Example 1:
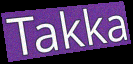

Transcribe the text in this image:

Takka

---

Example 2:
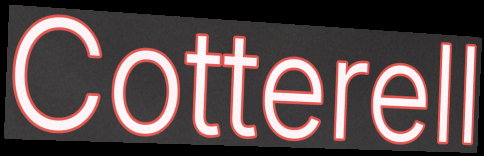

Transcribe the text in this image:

Cotterell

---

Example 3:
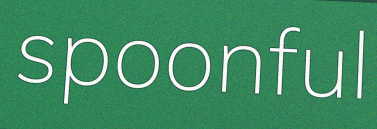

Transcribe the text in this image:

spoonful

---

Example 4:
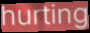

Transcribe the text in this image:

hurting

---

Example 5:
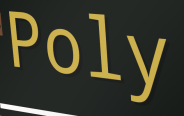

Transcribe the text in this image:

Poly